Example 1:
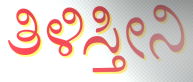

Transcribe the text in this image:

ತಿಳಿಸ್ತೀನಿ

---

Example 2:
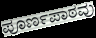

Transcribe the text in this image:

ಪೂರ್ಣಪಾಠವು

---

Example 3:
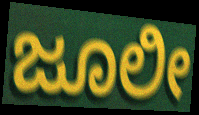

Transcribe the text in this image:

ಜೂಲೀ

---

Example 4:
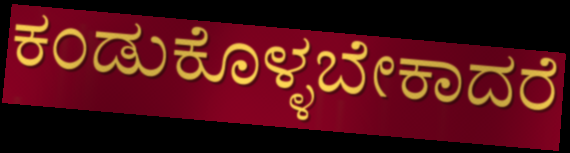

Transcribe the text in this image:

ಕಂಡುಕೊಳ್ಳಬೇಕಾದರೆ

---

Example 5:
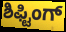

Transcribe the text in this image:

ಶಿಫ್ಟಿಂಗ್